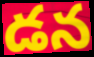
డన